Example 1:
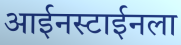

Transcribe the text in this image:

आईनस्टाईनला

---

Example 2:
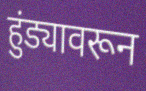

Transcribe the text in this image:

हुंड्यावरून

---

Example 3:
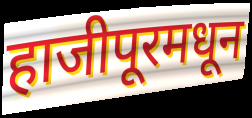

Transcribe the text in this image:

हाजीपूरमधून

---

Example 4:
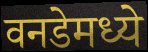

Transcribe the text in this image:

वनडेमध्ये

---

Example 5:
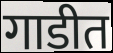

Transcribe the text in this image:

गाडीत